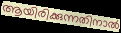
ആയിരിക്കുന്നതിനാൽ